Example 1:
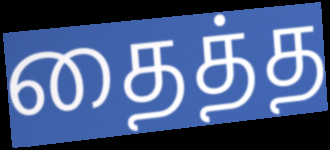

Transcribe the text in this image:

தைத்த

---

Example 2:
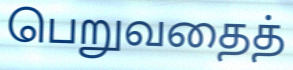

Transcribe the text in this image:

பெறுவதைத்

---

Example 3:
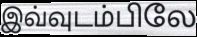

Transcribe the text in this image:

இவ்வுடம்பிலே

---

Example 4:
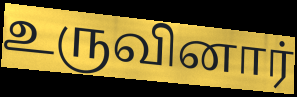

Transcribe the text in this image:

உருவினார்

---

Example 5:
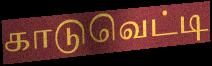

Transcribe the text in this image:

காடுவெட்டி